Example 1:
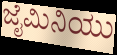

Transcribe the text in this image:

ಜೈಮಿನಿಯು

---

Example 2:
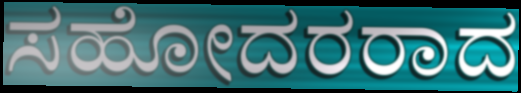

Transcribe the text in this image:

ಸಹೋದರರಾದ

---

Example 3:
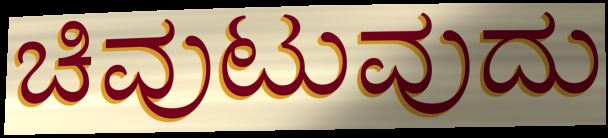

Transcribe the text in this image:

ಚಿವುಟುವುದು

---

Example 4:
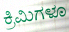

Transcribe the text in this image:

ಕ್ರಿಮಿಗಳೂ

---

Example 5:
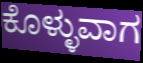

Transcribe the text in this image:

ಕೊಳ್ಳುವಾಗ